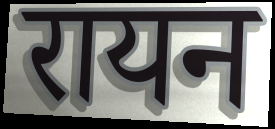
रायन